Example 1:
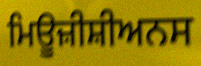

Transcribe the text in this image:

ਮਿਊਜ਼ੀਸ਼ੀਅਨਸ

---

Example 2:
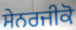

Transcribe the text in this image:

ਸੇਨਰਜੀਕੋ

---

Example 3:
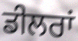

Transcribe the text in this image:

ਡੀਲਰਾਂ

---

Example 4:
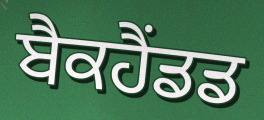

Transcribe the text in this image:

ਬੈਕਹੈਂਡਡ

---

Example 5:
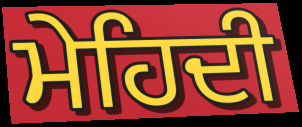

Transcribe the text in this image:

ਮੇਹਿਦੀ